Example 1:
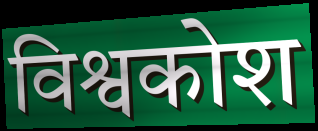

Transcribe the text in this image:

विश्वकोश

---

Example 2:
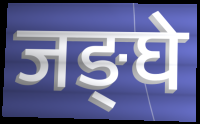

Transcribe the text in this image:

जङ्घे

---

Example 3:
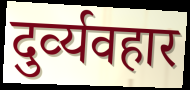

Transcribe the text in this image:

दुर्व्‍यवहार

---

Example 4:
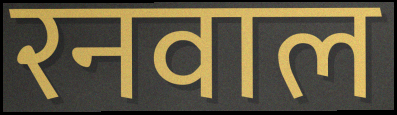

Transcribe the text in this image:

रनवाल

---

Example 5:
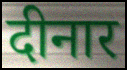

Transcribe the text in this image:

दीनार